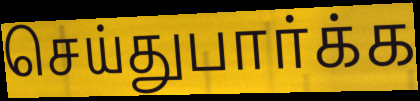
செய்துபார்க்க